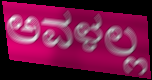
ಅವಳಲ್ಲ